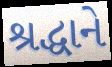
શ્રદ્ધાને